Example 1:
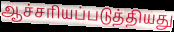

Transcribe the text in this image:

ஆச்சரியப்படுத்தியது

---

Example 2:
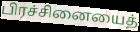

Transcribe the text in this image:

பிரச்சினையைத்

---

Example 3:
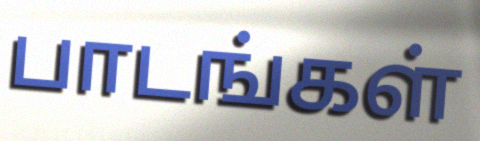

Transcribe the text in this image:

பாடங்கள்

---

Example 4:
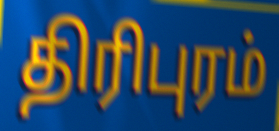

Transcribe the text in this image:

திரிபுரம்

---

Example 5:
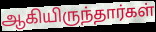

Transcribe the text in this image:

ஆகியிருந்தார்கள்